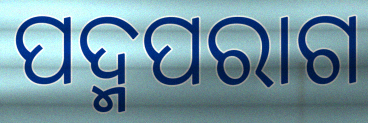
ପଦ୍ମପରାଗ